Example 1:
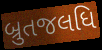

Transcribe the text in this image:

બ્રુતજલધિ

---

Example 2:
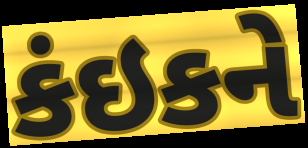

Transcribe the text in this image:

કંઇકને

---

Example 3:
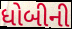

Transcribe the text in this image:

ધોબીની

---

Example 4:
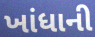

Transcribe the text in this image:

ખાંધાની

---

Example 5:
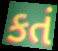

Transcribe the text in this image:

કતં